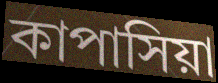
কাপাসিয়া